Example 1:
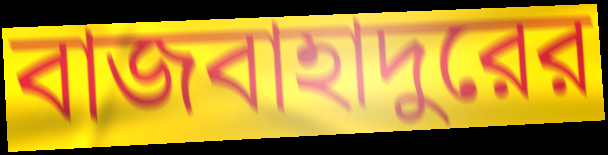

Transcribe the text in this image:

বাজবাহাদুরের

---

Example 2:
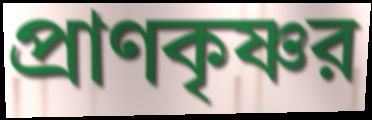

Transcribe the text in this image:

প্রাণকৃষ্ণর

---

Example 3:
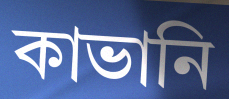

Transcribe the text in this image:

কাভানি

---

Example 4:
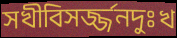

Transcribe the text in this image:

সখীবিসর্জ্জনদুঃখ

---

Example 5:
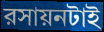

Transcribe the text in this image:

রসায়নটাই